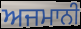
ਅਜਮਾਨੀ